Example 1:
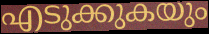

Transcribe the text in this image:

എടുക്കുകയും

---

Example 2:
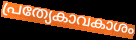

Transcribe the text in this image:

പ്രത്യേകാവകാശം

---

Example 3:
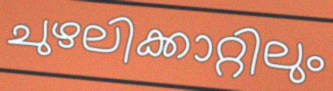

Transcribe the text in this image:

ചുഴലിക്കാറ്റിലും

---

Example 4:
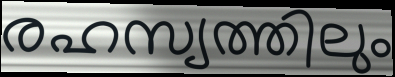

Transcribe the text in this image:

രഹസ്യത്തിലും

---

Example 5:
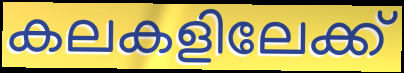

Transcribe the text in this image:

കലകളിലേക്ക്